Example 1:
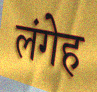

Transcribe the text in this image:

लंगेह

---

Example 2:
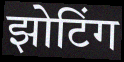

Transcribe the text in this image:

झोटिंग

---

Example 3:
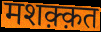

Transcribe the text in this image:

मशक़्क़त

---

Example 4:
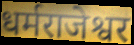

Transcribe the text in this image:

धर्मराजेश्वर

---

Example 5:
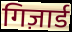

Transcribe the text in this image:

गिज़ार्ड